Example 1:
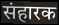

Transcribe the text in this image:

संहारक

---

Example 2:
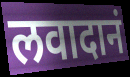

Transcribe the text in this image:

लवादानं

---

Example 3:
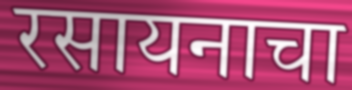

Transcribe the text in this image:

रसायनाचा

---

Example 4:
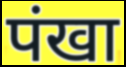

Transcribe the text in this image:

पंखा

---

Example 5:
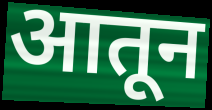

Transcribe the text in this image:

आतून